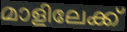
മാളിലേക്ക്